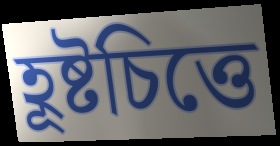
হূষ্টচিত্তে